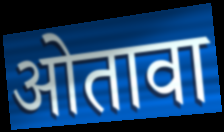
ओतावा